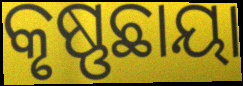
କୃଷ୍ଣଛାୟା